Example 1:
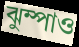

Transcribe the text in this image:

ঝুম্পাও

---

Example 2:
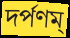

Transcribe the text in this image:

দর্পণম্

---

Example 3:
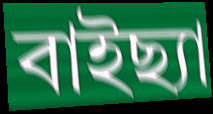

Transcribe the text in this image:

বাইছ্যা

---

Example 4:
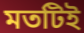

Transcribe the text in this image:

মতটিই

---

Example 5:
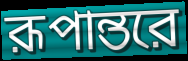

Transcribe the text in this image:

রূপান্তরে